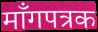
माँगपत्रक